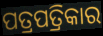
ପତ୍ରପତ୍ରିକାର